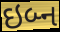
ઇબ્ન